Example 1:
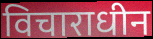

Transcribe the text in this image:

विचाराधीन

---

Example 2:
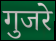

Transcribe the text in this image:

गुजरे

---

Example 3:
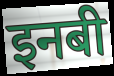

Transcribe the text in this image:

इनबी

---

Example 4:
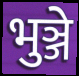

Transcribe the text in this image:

भुञ्जे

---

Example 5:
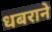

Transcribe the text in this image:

धबराने